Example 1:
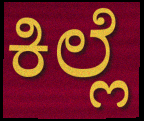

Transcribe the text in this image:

ಕಿಲ್ಲೆ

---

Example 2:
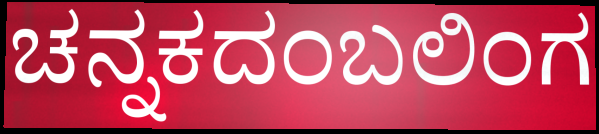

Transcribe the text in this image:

ಚನ್ನಕದಂಬಲಿಂಗ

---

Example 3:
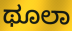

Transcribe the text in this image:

ಥೂಲಾ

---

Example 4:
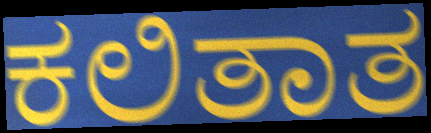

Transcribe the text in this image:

ಕಲಿತಾತ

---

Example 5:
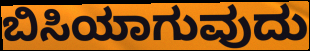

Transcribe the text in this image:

ಬಿಸಿಯಾಗುವುದು